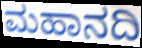
ಮಹಾನದಿ